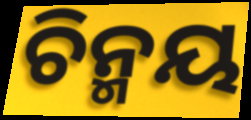
ଚିନ୍ମୟ